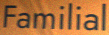
Familial